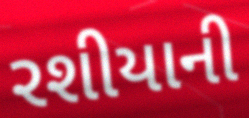
રશીયાની